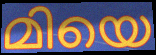
മിയെ